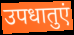
उपधातुएं